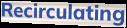
Recirculating